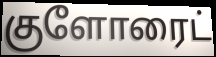
குளோரைட்